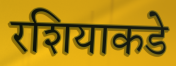
रशियाकडे